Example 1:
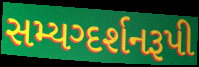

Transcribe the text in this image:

સમ્યગ્દર્શનરૂપી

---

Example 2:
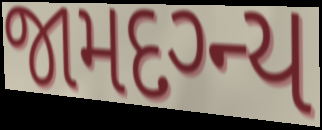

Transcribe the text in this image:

જામદગ્ન્ય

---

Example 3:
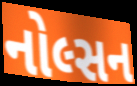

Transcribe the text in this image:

નોલ્સન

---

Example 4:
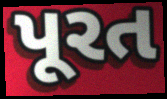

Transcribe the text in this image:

પૂરત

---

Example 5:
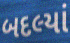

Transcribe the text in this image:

બદલ્યાં